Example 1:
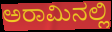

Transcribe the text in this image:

ಅರಾಮಿನಲ್ಲಿ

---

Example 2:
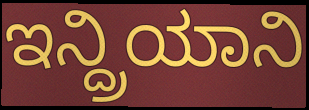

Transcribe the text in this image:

ಇನ್ದ್ರಿಯಾನಿ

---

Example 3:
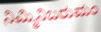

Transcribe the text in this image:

ನಿಮ್ಮಿನಿಬರುಮಂ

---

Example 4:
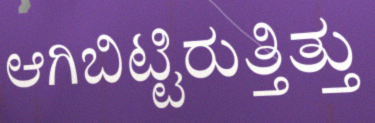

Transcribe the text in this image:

ಆಗಿಬಿಟ್ಟಿರುತ್ತಿತ್ತು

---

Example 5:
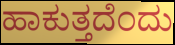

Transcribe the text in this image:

ಹಾಕುತ್ತದೆಂದು